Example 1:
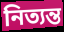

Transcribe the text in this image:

নিত্যন্ত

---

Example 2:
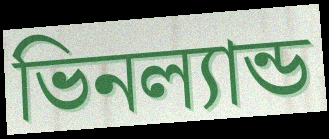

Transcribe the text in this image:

ভিনল্যান্ড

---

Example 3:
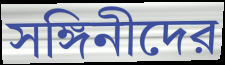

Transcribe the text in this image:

সঙ্গিনীদের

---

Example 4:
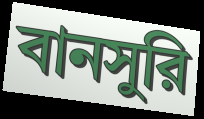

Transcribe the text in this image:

বানসুরি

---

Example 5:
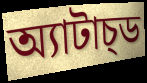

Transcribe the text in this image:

অ্যাটাচ্ড